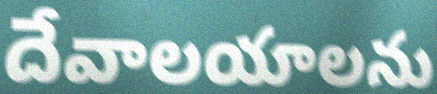
దేవాలయాలను